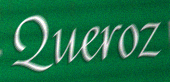
Queroz